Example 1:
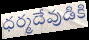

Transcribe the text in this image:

ధర్మదేవుడికి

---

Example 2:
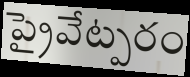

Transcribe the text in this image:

ప్రైవేట్పరం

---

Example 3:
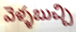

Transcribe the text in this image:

వెళ్ళబుచ్చి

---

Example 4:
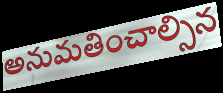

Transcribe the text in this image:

అనుమతించాల్సిన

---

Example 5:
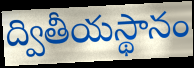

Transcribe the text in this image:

ద్వితీయస్థానం